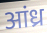
आंध्र